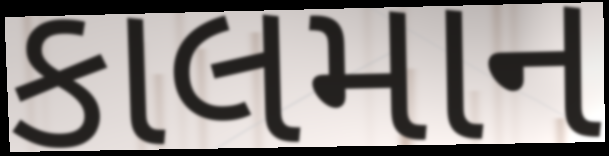
કાલમાન